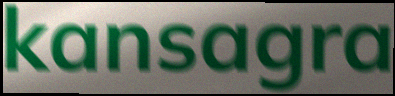
kansagra